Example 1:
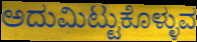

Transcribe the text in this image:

ಅದುಮಿಟ್ಟುಕೊಳ್ಳುವ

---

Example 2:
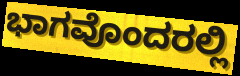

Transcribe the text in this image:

ಭಾಗವೊಂದರಲ್ಲಿ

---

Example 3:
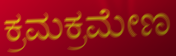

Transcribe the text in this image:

ಕ್ರಮಕ್ರಮೇಣ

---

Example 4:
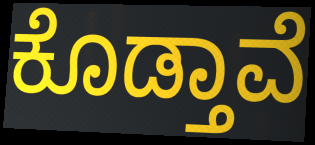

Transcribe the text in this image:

ಕೊಡ್ತಾವೆ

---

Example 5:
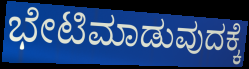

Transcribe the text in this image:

ಭೇಟಿಮಾಡುವುದಕ್ಕೆ